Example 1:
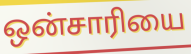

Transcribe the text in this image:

ஒன்சாரியை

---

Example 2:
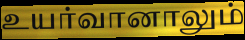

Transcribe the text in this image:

உயர்வானாலும்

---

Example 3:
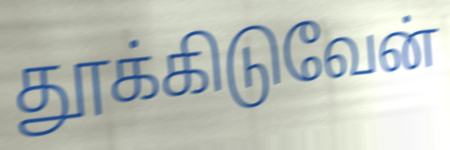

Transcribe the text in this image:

தூக்கிடுவேன்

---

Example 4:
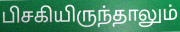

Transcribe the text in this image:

பிசகியிருந்தாலும்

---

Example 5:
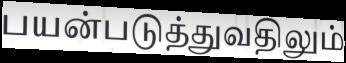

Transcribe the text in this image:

பயன்படுத்துவதிலும்